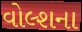
વોલ્શના